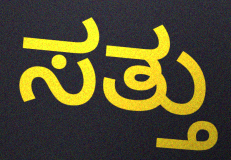
ಸತ್ತು